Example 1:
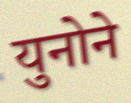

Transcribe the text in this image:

युनोने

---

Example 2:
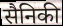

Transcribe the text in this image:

सैनिकी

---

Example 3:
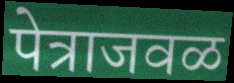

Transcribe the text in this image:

पेत्राजवळ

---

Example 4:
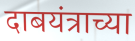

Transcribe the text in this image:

दाबयंत्राच्या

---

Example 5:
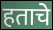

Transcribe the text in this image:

हताचे